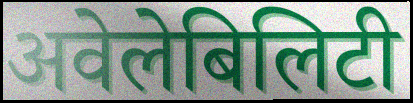
अवेलेबिलिटी